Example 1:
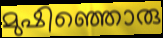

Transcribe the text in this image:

മുഷിഞ്ഞൊരു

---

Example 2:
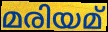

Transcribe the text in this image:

മരിയമ്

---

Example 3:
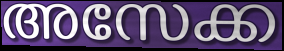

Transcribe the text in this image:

അസേക്ക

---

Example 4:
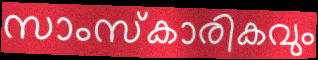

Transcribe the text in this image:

സാംസ്കാരികവും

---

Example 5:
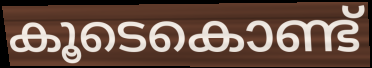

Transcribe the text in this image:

കൂടെകൊണ്ട്